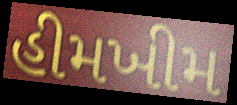
હીમખીમ